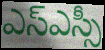
ఎస్ఎస్సీ